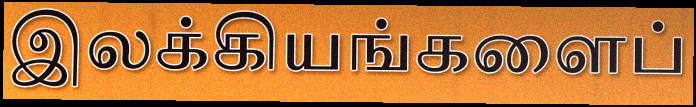
இலக்கியங்களைப்